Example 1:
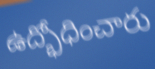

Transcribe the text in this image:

ఉద్భోధించారు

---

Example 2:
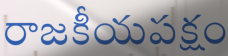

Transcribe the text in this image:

రాజకీయపక్షం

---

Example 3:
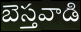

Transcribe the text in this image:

బెస్తవాడి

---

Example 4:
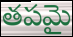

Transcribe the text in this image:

తపమై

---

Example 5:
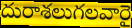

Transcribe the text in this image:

దురాశలుగలవారై